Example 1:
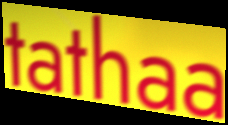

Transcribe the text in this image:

tathaa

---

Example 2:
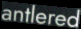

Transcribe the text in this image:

antlered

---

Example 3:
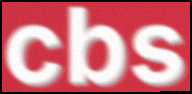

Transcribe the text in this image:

cbs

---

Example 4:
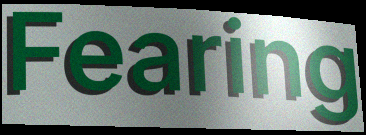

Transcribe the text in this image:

Fearing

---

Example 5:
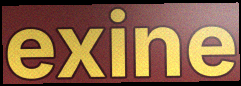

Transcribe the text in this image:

exine